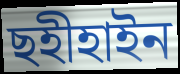
ছহীহাইন